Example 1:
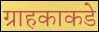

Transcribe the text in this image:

ग्राहकाकडे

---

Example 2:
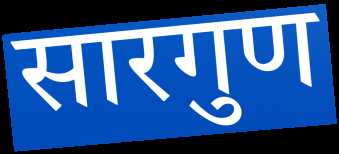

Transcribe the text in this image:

सारगुण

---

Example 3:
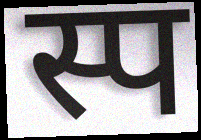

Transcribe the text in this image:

स्प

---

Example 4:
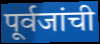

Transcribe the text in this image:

पूर्वजांची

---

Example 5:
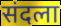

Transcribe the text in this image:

संदला